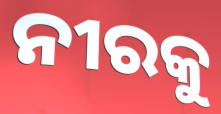
ନୀରକୁ